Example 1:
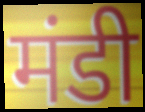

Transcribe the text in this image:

मंडी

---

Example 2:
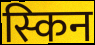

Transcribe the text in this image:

स्‍किन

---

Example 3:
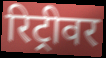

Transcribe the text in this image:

रिट्रीवर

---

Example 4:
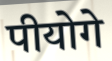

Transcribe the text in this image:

पीयोगे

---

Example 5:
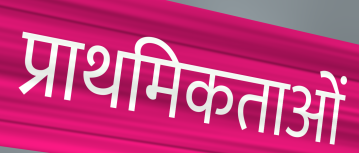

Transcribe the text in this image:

प्राथमिकताओं